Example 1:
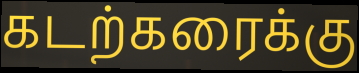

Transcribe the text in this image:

கடற்கரைக்கு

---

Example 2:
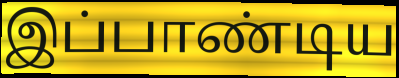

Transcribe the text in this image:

இப்பாண்டிய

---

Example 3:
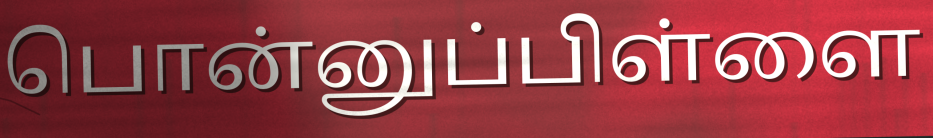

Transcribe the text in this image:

பொன்னுப்பிள்ளை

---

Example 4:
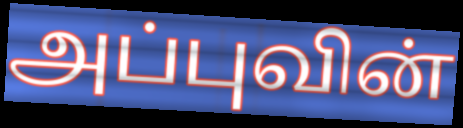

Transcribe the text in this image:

அப்புவின்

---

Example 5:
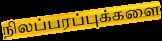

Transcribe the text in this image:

நிலப்பரப்புக்களை